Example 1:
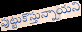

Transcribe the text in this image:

పుట్టుకొస్తున్నాయని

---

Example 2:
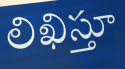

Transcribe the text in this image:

లిఖిస్తూ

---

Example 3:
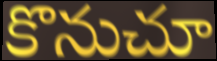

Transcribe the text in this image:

కొనుచూ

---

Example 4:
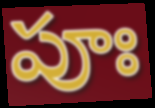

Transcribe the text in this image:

పూః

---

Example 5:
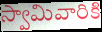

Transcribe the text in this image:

స్వామివారికి